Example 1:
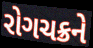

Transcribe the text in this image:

રોગચક્રને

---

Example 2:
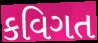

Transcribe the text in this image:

કવિગત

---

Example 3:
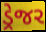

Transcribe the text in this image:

ડ્રેજર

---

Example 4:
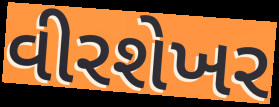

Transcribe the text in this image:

વીરશેખર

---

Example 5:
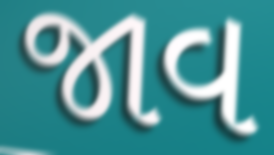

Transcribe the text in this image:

જાવ